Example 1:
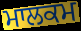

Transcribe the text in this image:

ਮਾਲਕਮ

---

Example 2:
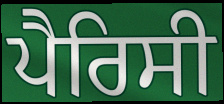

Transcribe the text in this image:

ਪੈਰਿਸੀ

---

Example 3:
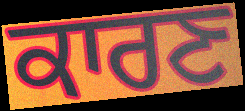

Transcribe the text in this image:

ਕਾਰਣ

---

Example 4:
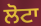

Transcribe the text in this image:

ਲੋਟਾ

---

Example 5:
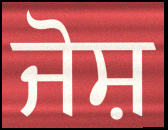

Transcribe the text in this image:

ਜੋਸ਼